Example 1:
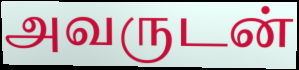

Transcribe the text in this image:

அவருடன்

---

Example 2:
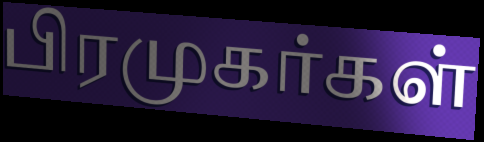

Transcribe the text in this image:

பிரமுகர்கள்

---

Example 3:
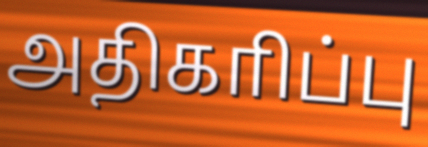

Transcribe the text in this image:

அதிகரிப்பு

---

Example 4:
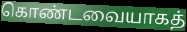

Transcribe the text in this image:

கொண்டவையாகத்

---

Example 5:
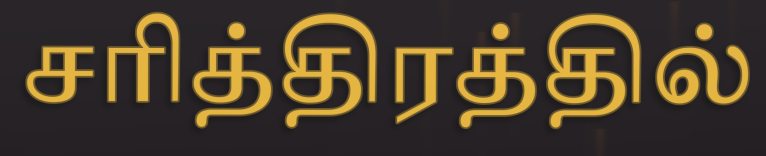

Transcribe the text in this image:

சரித்திரத்தில்